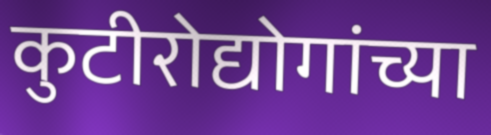
कुटीरोद्योगांच्या